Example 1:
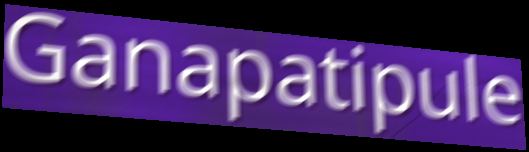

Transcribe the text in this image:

Ganapatipule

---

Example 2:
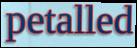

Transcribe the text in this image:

petalled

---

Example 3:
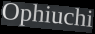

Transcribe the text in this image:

Ophiuchi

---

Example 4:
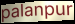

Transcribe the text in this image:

palanpur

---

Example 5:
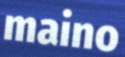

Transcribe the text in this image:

maino